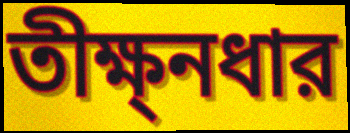
তীক্ষ্নধার